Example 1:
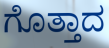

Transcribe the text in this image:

ಗೊತ್ತಾದ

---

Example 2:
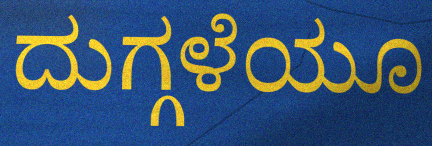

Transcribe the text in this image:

ದುಗ್ಗಳೆಯೂ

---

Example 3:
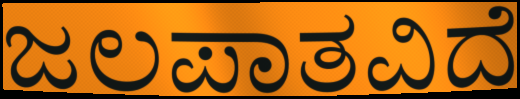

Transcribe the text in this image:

ಜಲಪಾತವಿದೆ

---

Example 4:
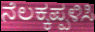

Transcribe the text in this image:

ನೆಲಕ್ಕಪ್ಪಳಿಸಿ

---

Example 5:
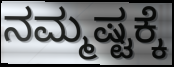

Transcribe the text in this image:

ನಮ್ಮಷ್ಟಕ್ಕೆ